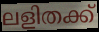
ലളിതക്ക്